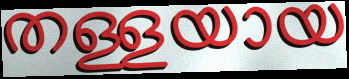
തള്ളയായ